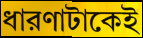
ধারণাটাকেই